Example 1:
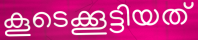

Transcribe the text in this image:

കൂടെക്കൂട്ടിയത്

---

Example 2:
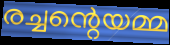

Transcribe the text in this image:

രച്ചന്റെയമ്മ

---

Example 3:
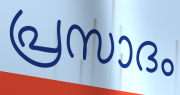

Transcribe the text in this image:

പ്രസാദം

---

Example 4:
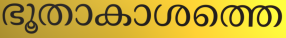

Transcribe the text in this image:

ഭൂതാകാശത്തെ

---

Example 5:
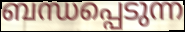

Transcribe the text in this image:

ബന്ധപ്പെടുന്ന